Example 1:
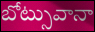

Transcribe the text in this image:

బోట్సువానా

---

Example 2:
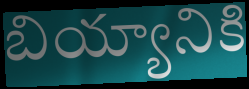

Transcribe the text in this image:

బియ్యానికి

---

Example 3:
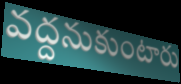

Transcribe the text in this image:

వద్దనుకుంటారు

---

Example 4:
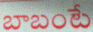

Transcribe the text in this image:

బాబంటే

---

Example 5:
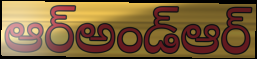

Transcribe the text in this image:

ఆర్అండ్ఆర్